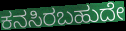
ಕನಸಿರಬಹುದೇ